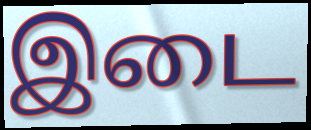
இடை